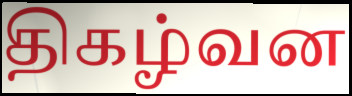
திகழ்வன